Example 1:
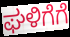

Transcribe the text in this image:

ಘಳಿಗೆಗೆ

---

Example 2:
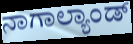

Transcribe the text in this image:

ನಾಗಾಲ್ಯಾಂಡ್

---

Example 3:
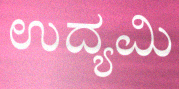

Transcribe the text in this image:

ಉದ್ಯಮಿ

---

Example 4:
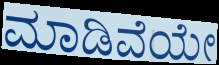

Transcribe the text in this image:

ಮಾಡಿವೆಯೇ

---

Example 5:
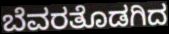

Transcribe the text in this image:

ಬೆವರತೊಡಗಿದ